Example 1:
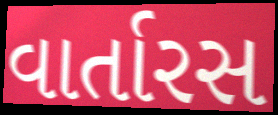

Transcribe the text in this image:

વાર્તારસ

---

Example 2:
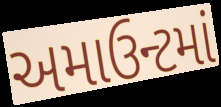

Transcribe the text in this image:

અમાઉન્ટમાં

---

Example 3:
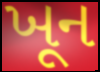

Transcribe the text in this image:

ખૂન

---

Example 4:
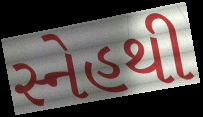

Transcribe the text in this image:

સ્નેહથી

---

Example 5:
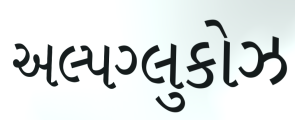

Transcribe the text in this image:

અલ્પગ્લુકોઝ